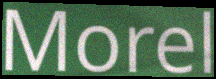
Morel